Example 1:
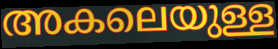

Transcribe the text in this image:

അകലെയുള്ള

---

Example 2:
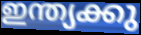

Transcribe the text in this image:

ഇന്ത്യക്കു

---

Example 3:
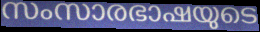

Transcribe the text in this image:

സംസാരഭാഷയുടെ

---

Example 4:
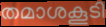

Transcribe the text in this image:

തമാശകൂടി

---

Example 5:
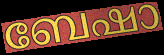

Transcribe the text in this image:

ബേഷാ